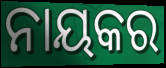
ନାୟକର